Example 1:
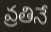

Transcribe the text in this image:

వ్రతినే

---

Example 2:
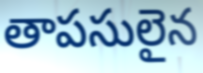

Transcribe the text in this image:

తాపసులైన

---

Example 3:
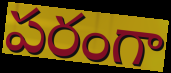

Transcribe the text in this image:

పరంగా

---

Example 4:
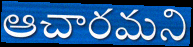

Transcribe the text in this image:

ఆచారమని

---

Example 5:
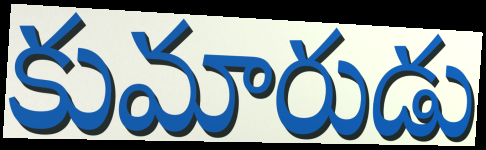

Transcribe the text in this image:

కుమారుడు